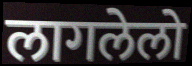
लागलेलो